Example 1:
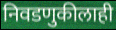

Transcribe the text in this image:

निवडणुकीलाही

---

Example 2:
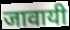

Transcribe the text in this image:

जावायी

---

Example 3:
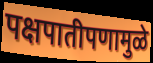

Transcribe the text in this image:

पक्षपातीपणामुळे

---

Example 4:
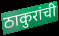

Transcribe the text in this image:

ठाकुरांची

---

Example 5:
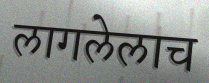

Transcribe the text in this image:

लागलेलाच